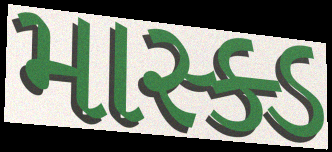
માસ્ક્ડ